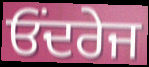
ਓਂਦਰੇਜ